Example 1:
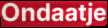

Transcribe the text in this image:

Ondaatje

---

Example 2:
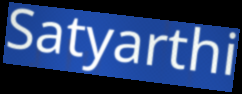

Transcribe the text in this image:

Satyarthi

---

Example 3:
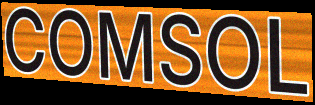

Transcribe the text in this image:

COMSOL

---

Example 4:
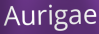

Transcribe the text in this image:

Aurigae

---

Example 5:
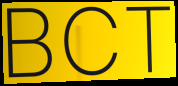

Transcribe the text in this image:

BCT